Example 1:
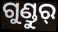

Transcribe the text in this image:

ଗୁଣ୍ଡୁର୍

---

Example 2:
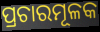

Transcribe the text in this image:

ପ୍ରଚାରମୂଳକ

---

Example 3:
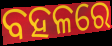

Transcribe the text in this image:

ବହଳରେ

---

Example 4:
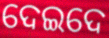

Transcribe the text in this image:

ଦେଇଦେ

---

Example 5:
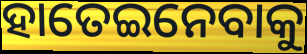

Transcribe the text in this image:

ହାତେଇନେବାକୁ